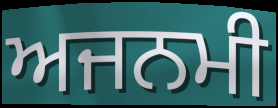
ਅਜਨਮੀ